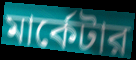
মার্কেটার